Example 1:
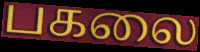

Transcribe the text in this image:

பகலை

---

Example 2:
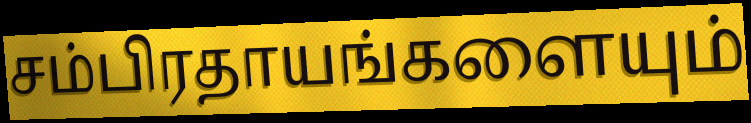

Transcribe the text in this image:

சம்பிரதாயங்களையும்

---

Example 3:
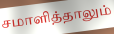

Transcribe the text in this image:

சமாளித்தாலும்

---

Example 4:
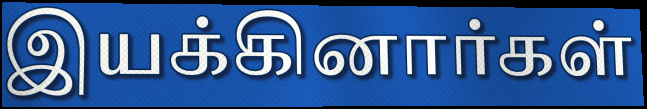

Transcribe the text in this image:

இயக்கினார்கள்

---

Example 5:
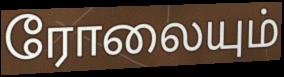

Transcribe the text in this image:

ரோலையும்